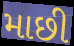
માછી